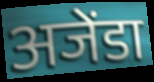
अजेंडा